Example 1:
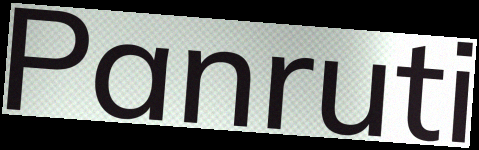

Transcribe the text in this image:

Panruti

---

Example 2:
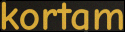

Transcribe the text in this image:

kortam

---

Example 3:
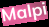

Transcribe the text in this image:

Malpi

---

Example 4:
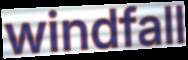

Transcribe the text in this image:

windfall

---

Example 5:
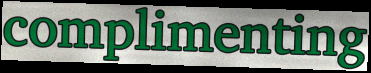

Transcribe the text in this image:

complimenting